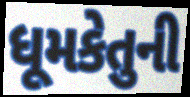
ધૂમકેતુની